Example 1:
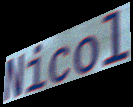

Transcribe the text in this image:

Nicol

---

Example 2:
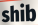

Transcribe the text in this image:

shib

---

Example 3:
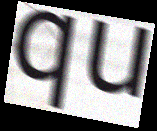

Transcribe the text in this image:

qu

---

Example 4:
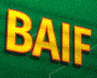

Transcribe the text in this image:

BAIF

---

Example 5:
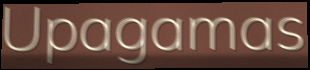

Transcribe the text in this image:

Upagamas